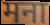
मना